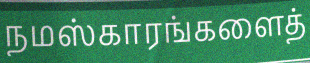
நமஸ்காரங்களைத்